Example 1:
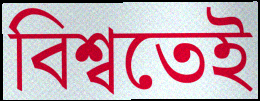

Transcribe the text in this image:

বিশ্বতেই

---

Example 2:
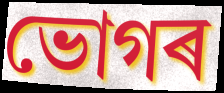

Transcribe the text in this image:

ভোগৰ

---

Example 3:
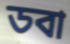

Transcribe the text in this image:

ডবা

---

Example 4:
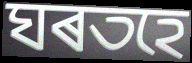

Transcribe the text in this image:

ঘৰতহে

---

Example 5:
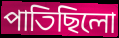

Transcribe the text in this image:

পাতিছিলো